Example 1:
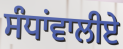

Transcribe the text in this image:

ਸੰਧਾਂਵਾਲੀਏ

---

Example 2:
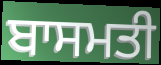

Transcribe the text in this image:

ਬਾਸਮਤੀ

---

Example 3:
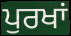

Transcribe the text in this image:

ਪੁਰਖਾਂ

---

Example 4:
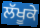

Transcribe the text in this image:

ਲੱਖੂਕੇ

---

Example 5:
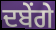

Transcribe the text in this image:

ਦਬੇਂਗੇ